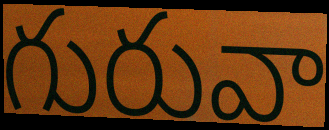
గురువా